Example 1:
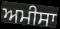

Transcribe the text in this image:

ਅਮੀਸਾ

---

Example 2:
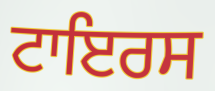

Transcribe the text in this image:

ਟਾਇਰਸ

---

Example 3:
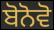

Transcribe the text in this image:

ਬੋਨੋਵੋ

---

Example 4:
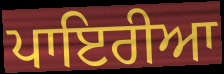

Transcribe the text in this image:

ਪਾਇਰੀਆ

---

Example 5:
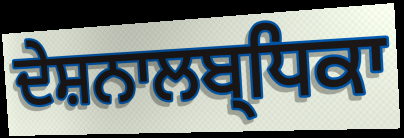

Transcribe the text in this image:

ਦੇਸ਼ਨਾਲਬ੍ਧਿਕਾ